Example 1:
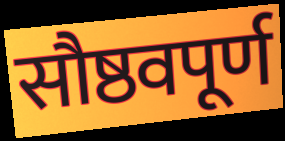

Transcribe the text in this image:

सौष्ठवपूर्ण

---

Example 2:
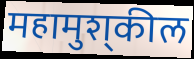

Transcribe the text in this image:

महामुश्कील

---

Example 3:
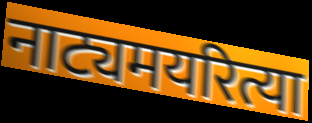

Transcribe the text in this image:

नाट्यमयरित्या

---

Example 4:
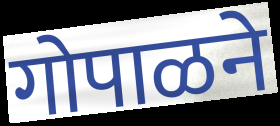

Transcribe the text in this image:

गोपाळने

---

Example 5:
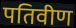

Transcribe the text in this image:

पतिवीण